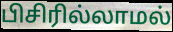
பிசிரில்லாமல்